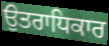
ਉਤਰਾਧਿਕਾਰ